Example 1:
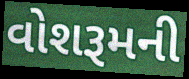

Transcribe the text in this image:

વોશરૂમની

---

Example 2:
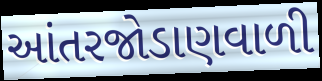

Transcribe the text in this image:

આંતરજોડાણવાળી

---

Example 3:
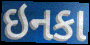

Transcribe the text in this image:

ઇનકા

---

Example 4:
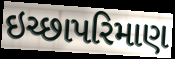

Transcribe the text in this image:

ઇચ્છાપરિમાણ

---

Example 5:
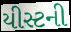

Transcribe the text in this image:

યીસ્ટની